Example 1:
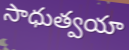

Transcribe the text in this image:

సాధుత్వయా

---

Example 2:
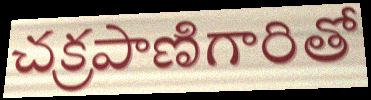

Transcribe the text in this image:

చక్రపాణిగారితో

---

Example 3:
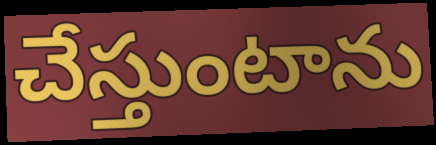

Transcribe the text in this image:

చేస్తుంటాను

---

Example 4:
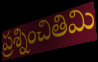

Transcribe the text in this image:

ప్రశ్నించితిమి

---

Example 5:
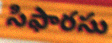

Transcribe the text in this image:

సిఫారసు